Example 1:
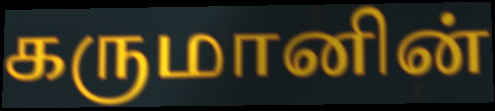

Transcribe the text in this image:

கருமானின்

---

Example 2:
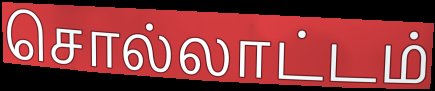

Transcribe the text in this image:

சொல்லாட்டம்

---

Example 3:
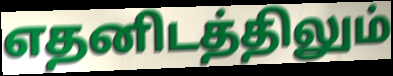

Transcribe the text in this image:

எதனிடத்திலும்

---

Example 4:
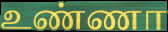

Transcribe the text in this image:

உண்ணா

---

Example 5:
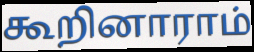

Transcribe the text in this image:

கூறினாராம்